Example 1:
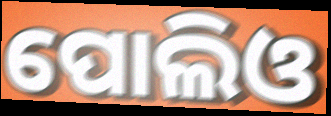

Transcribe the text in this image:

ପୋଲିଓ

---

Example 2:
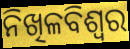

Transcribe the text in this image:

ନିଖିଳବିଶ୍ୱର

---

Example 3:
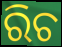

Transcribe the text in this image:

ରିଚ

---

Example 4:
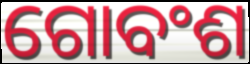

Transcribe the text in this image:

ଗୋବଂଶ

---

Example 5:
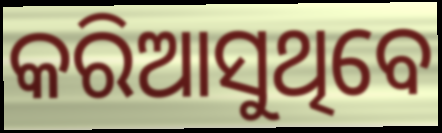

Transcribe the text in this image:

କରିଆସୁଥିବେ